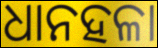
ଧାନହଳା